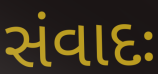
સંવાદઃ